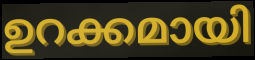
ഉറക്കമായി